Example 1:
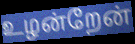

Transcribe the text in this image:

உழன்றேன்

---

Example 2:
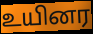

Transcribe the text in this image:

உயினர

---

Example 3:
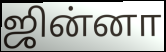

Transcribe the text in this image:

ஜின்னா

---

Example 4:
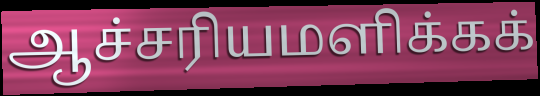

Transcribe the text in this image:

ஆச்சரியமளிக்கக்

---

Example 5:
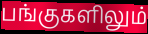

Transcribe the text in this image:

பங்குகளிலும்